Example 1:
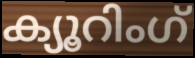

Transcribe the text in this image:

ക്യൂറിംഗ്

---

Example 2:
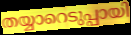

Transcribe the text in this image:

തയ്യാറെടുപ്പായി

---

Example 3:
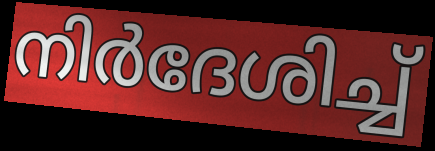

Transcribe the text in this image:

നിർദേശിച്ച്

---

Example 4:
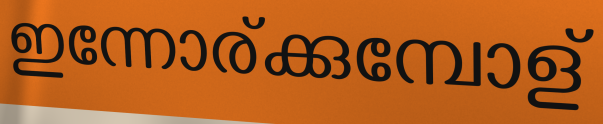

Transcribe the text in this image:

ഇന്നോര്ക്കുമ്പോള്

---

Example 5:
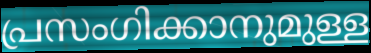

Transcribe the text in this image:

പ്രസംഗിക്കാനുമുള്ള